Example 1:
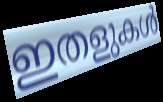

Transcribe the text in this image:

ഇതളുകൾ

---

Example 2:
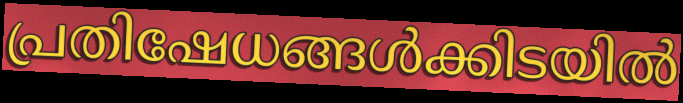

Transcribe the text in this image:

പ്രതിഷേധങ്ങൾക്കിടയിൽ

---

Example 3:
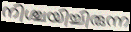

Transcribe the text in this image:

നിശ്ചയിച്ചിരുന്ന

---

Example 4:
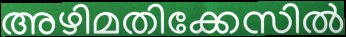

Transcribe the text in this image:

അഴിമതിക്കേസിൽ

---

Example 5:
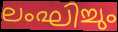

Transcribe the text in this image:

ലംഘിച്ചും